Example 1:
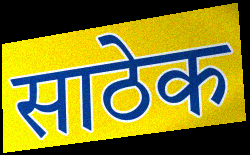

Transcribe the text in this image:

साठेक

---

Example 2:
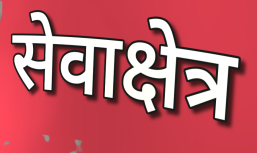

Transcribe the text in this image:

सेवाक्षेत्र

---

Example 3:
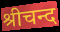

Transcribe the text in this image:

श्रीचन्द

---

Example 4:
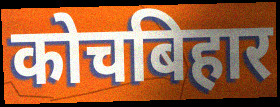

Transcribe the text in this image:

कोचबिहार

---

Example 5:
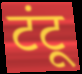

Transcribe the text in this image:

टंटू